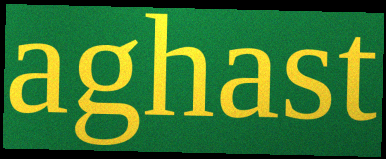
aghast